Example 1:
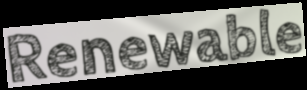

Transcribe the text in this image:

Renewable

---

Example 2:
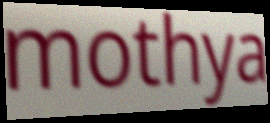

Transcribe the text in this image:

mothya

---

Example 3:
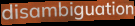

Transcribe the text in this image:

disambiguation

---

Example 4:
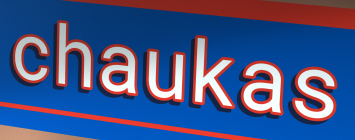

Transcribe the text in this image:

chaukas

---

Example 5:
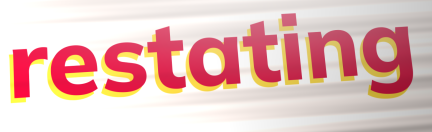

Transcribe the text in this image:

restating